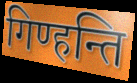
गिण्हन्ति